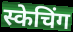
स्केचिंग